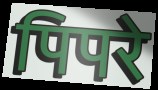
पिपरे